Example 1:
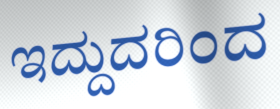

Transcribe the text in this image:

ಇದ್ದುದರಿಂದ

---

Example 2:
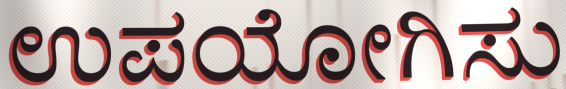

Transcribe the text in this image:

ಉಪಯೋಗಿಸು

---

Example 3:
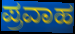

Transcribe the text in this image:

ಪ್ರವಾಹ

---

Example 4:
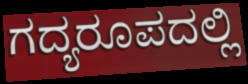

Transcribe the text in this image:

ಗದ್ಯರೂಪದಲ್ಲಿ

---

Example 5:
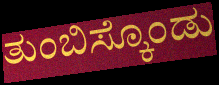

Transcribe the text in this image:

ತುಂಬಿಸ್ಕೊಂಡು